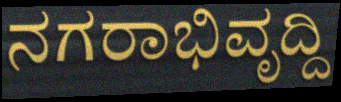
ನಗರಾಭಿವೃದ್ದಿ